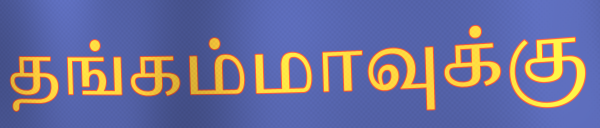
தங்கம்மாவுக்கு